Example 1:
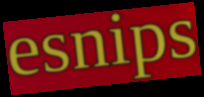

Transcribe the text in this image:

esnips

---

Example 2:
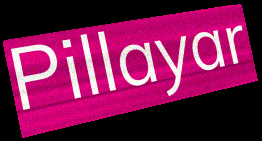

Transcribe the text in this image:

Pillayar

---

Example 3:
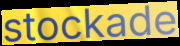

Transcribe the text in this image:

stockade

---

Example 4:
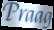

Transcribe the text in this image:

Praag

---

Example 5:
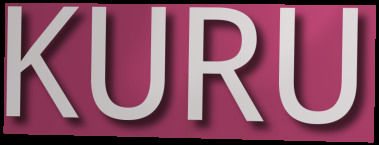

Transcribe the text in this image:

KURU